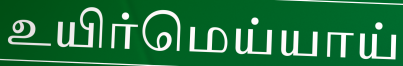
உயிர்மெய்யாய்